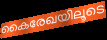
കൈരേഖയിലൂടെ